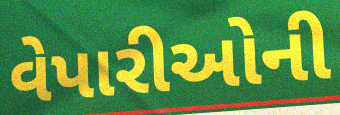
વેપારીઓની